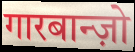
गारबान्ज़ो